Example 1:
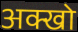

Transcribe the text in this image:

अक्खो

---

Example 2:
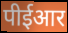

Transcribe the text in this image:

पीईआर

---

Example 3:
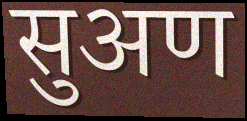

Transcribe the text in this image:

सुअण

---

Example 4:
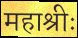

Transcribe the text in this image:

महाश्रीः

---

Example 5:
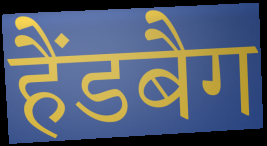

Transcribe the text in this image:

हैंडबैग